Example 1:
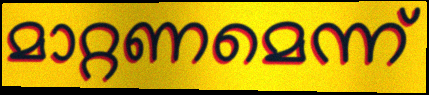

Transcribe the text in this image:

മാറ്റണമെന്ന്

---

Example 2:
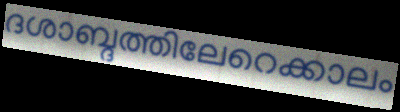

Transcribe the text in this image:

ദശാബ്ദത്തിലേറെക്കാലം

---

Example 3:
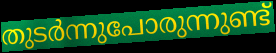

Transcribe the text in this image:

തുടർന്നുപോരുന്നുണ്ട്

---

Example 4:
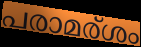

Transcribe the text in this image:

പരാമര്ശം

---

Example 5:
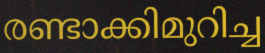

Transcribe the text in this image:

രണ്ടാക്കിമുറിച്ച